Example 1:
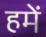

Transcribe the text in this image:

हमें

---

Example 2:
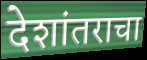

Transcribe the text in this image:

देशांतराचा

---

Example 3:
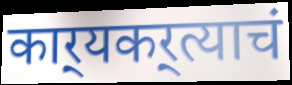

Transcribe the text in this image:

कार्यकर्त्याचं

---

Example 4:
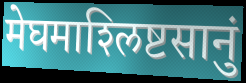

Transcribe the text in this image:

मेघमाश्लिष्टसानुं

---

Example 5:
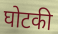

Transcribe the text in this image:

घोटकी